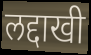
लद्दाखी